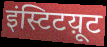
इंस्टिटय़ूट